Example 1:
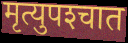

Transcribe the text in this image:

मृत्युपश्‍चात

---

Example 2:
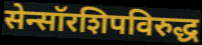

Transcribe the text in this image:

सेन्सॉरशिपविरुद्ध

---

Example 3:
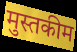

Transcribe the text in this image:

मुस्तकीम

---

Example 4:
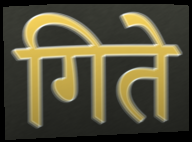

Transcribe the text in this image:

गिते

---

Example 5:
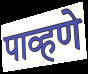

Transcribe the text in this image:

पाव्हणे